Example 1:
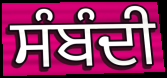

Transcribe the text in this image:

ਸੰਬੰਦੀ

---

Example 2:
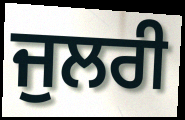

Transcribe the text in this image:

ਜੁਲਰੀ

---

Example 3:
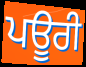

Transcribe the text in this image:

ਪਊਰੀ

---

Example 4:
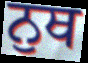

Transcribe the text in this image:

ਨੁਥ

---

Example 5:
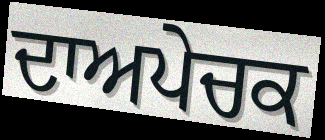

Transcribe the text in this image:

ਦਾਅਪੇਚਕ